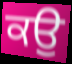
ਕਉੁ